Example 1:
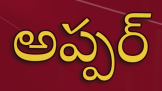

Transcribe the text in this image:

అప్పర్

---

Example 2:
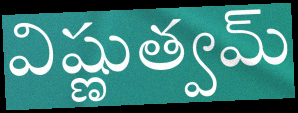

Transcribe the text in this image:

విష్ణుత్వమ్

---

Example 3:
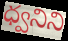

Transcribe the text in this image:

ధ్వనిని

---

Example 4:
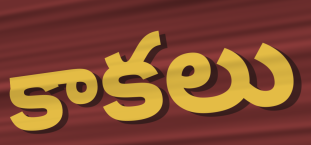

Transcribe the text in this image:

కాకలు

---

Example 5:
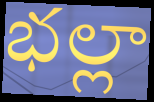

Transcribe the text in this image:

భల్లా